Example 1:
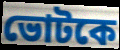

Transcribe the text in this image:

ভোটকে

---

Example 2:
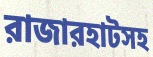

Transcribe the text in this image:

রাজারহাটসহ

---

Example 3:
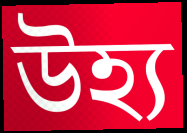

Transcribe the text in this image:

উহ্য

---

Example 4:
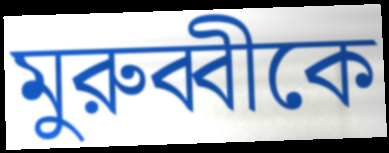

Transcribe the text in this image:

মুরুব্বীকে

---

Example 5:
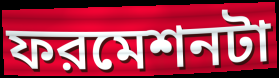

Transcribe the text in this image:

ফরমেশনটা